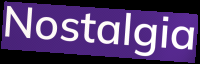
Nostalgia